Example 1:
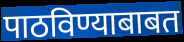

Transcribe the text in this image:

पाठविण्याबाबत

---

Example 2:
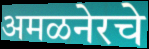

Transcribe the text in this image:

अमळनेरचे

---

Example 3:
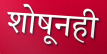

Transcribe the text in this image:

शोषूनही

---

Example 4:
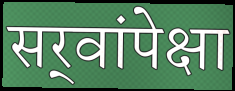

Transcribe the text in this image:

सर्वांपेक्षा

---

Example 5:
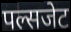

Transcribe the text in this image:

पल्सजेट